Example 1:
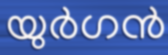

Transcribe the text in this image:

യുർഗൻ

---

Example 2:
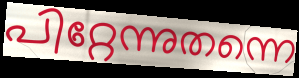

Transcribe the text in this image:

പിറ്റേന്നുതന്നെ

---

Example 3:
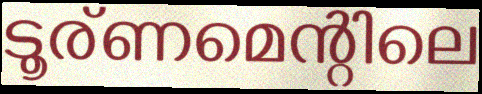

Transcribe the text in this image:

ടൂര്ണമെന്റിലെ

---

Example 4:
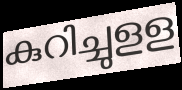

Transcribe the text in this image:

കുറിച്ചുളള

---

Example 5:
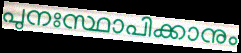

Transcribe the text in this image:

പുനഃസ്ഥാപിക്കാനും